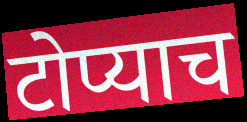
टोप्याच